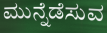
ಮುನ್ನೆಡೆಸುವ